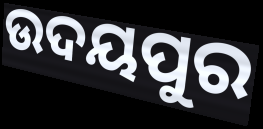
ଉଦୟପୁର